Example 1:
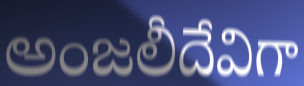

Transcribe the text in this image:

అంజలీదేవిగా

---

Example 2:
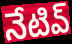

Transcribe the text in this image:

నేటివ్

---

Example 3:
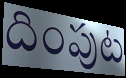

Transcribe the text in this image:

దింపుట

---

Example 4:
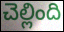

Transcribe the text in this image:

చెల్లింది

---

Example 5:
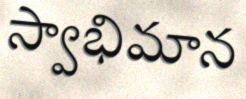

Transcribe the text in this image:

స్వాభిమాన